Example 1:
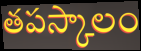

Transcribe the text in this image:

తపస్కాలం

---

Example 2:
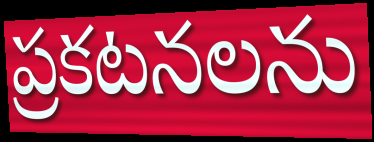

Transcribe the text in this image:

ప్రకటనలను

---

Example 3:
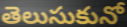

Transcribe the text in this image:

తెలుసుకునో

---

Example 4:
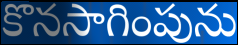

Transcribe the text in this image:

కొనసాగింపును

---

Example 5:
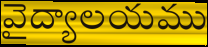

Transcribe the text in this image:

వైద్యాలయము